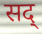
सद्